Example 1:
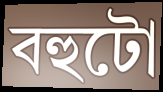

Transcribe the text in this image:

বহুটো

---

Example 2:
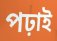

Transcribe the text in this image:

পঢ়াই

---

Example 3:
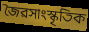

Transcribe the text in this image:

জৈৱসাংস্কৃতিক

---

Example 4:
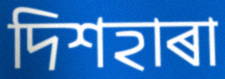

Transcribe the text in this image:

দিশহাৰা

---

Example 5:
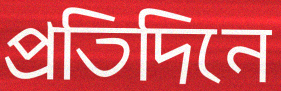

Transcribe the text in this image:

প্ৰতিদিনে